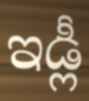
ఇడ్లీ